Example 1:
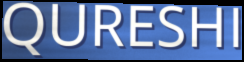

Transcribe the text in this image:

QURESHI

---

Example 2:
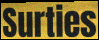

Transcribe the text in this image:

Surties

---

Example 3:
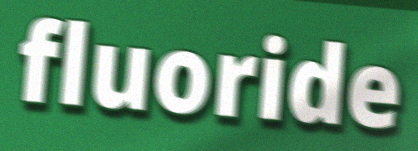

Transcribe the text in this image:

fluoride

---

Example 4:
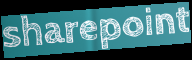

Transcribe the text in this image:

sharepoint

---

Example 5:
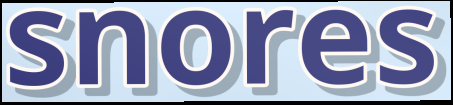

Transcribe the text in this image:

snores